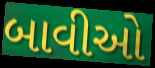
બાવીઓ